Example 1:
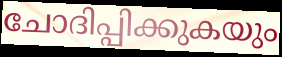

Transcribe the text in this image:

ചോദിപ്പിക്കുകയും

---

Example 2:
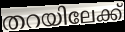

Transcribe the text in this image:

തറയിലേക്ക്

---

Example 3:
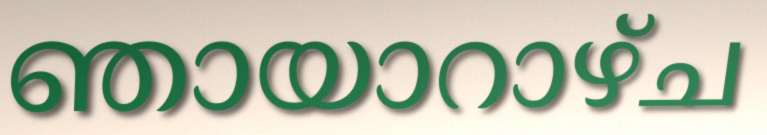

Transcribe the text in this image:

ഞായാറാഴ്ച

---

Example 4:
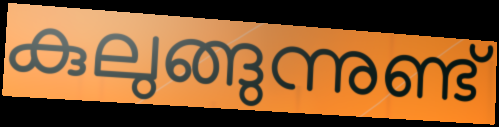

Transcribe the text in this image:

കുലുങ്ങുന്നുണ്ട്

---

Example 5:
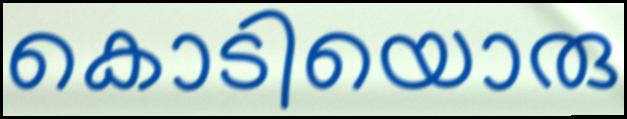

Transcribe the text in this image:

കൊടിയൊരു